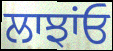
ਲਾਝਾਂਓ